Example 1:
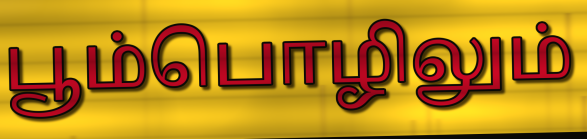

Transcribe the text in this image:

பூம்பொழிலும்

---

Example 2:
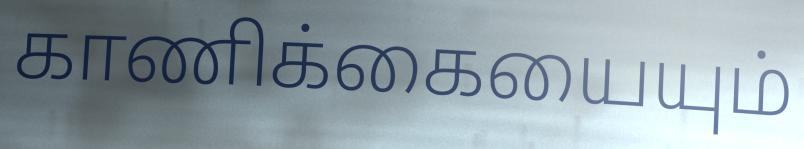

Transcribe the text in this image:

காணிக்கையையும்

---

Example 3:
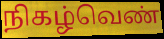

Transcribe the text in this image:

நிகழ்வெண்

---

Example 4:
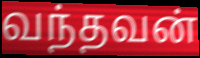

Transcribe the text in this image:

வந்தவன்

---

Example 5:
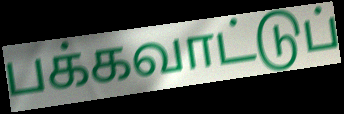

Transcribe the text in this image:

பக்கவாட்டுப்